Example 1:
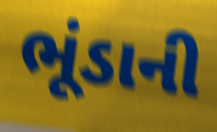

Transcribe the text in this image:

ભૂંડાની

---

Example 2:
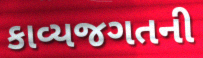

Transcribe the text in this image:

કાવ્યજગતની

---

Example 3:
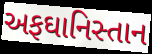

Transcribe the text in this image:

અફઘાનિસ્તાન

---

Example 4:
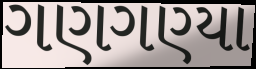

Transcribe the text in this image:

ગણગણ્યા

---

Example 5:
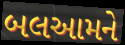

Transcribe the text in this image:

બલઆમને